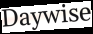
Daywise